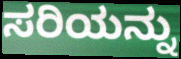
ಸರಿಯನ್ನು